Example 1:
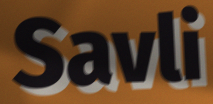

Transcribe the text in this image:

Savli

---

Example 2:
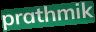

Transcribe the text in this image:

prathmik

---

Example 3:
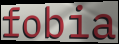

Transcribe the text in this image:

fobia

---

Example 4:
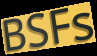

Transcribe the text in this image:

BSFs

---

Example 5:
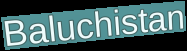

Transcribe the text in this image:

Baluchistan